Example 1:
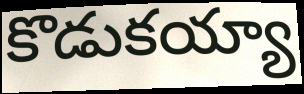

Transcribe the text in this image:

కొడుకయ్యా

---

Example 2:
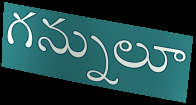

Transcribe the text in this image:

గన్నులూ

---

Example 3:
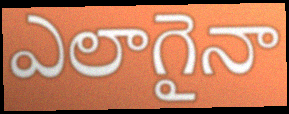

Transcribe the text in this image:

ఎలాగైనా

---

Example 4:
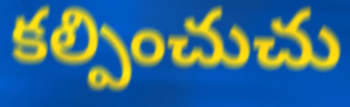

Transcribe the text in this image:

కల్పించుచు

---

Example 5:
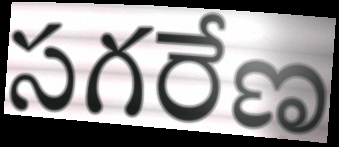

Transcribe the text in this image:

సగరేణ